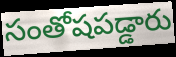
సంతోషపడ్డారు